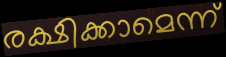
രക്ഷിക്കാമെന്ന്